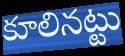
కూలినట్టు